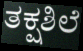
ತಕ್ಷಶಿಲೆ